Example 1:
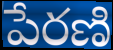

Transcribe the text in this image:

పేరణి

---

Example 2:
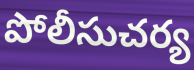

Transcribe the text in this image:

పోలీసుచర్య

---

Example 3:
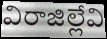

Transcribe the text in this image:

విరాజిల్లేవి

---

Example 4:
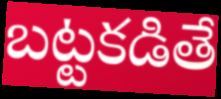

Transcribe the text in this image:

బట్టకడితే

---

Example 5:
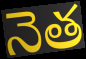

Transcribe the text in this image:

నెత